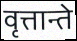
वृत्तान्ते